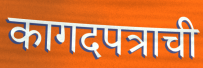
कागदपत्राची